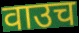
वाउच